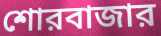
শোরবাজার